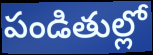
పండితుల్లో